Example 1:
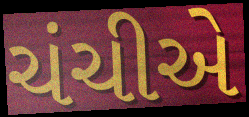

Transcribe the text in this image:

ચંચીએ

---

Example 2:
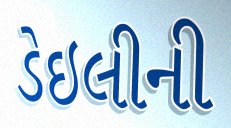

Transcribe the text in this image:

ડેઇલીની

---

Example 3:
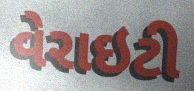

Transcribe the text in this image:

વેરાઇટી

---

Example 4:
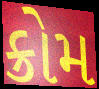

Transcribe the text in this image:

ક્રોમ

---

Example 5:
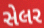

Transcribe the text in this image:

સેલર